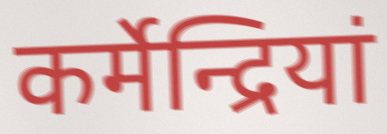
कर्मेन्द्रियां